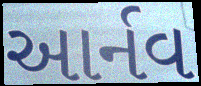
આર્નવ